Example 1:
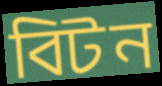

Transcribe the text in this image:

বিটন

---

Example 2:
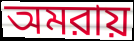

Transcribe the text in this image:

অমরায়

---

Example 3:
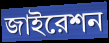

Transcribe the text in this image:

জাইরেশন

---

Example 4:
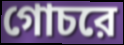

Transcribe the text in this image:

গোচরে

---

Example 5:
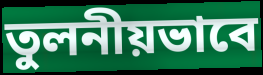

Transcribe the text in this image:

তুলনীয়ভাবে